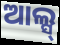
ଆଲ୍ସ୍